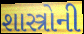
શાસ્ત્રોની